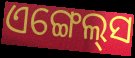
ଏଙ୍ଗେଲ୍‌ସ